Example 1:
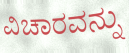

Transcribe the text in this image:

ವಿಚಾರವನ್ನು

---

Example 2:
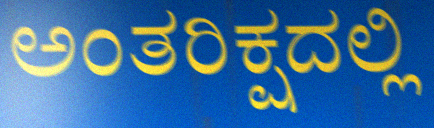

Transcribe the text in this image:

ಅಂತರಿಕ್ಷದಲ್ಲಿ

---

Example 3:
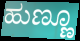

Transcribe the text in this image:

ಹುಣ್ಣೂ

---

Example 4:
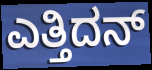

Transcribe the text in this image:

ಎತ್ತಿದನ್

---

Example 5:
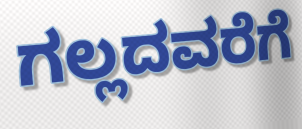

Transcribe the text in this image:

ಗಲ್ಲದವರೆಗೆ